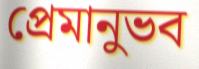
প্রেমানুভব